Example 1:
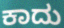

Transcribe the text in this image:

ಕಾದು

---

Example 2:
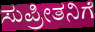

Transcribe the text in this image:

ಸುಪ್ರೀತನಿಗೆ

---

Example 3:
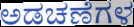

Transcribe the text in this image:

ಅಡಚಣೆಗಳ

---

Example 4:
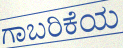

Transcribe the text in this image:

ಗಾಬರಿಕೆಯ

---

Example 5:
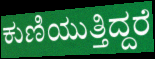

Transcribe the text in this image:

ಕುಣಿಯುತ್ತಿದ್ದರೆ